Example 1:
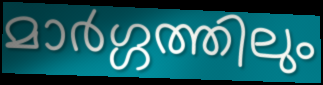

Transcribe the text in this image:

മാർഗ്ഗത്തിലും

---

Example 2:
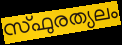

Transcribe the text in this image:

സ്ഫുരത്യലം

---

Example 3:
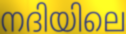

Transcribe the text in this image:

നദിയിലെ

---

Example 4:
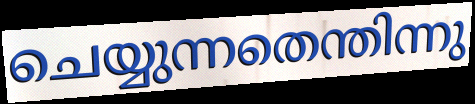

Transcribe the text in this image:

ചെയ്യുന്നതെന്തിന്നു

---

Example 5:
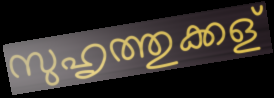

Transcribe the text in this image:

സുഹൃത്തുക്കള്